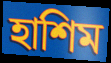
হাশিম